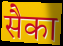
सैका